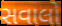
સવાલો